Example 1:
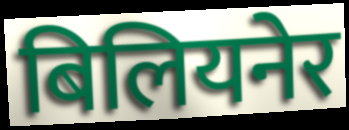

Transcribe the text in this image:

बिलियनेर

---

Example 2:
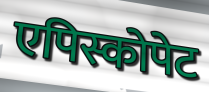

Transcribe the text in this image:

एपिस्कोपेट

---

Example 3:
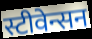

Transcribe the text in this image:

स्टीवेन्सन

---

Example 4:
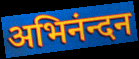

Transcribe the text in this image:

अभिनंन्दन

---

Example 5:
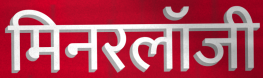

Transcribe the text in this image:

मिनरलॉजी